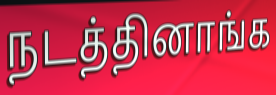
நடத்தினாங்க